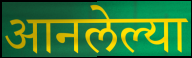
आनलेल्या